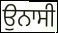
ਉਨਾਸੀ